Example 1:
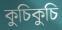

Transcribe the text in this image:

কুচিকুচি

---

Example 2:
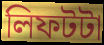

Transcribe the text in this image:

লিফটটা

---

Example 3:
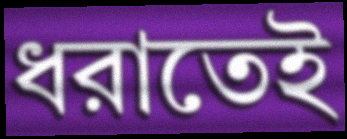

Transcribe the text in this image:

ধরাতেই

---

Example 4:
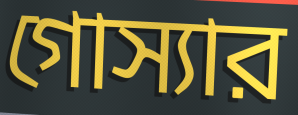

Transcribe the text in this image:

গোস্যার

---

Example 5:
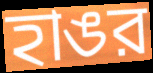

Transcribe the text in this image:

হাঙর